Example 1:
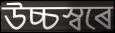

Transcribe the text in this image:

উচ্চস্বৰে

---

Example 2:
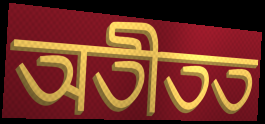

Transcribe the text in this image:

অতীতত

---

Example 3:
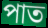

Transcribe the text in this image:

পাত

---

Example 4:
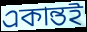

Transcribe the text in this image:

একান্তই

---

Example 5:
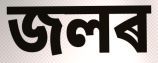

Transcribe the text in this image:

জলৰ